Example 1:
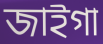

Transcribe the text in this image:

জাইগা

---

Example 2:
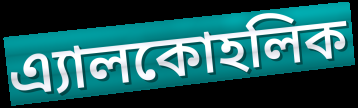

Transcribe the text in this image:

এ্যালকোহলিক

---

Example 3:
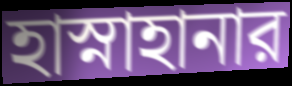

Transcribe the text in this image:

হাস্নাহানার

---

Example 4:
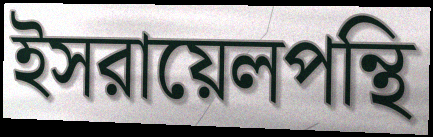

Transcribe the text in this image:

ইসরায়েলপন্থি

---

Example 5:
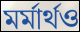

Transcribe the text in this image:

মর্মার্থও